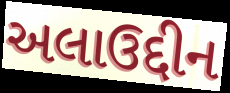
અલાઉદ્દીન